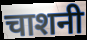
चाशनी